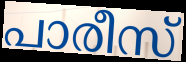
പാരീസ്